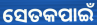
ସେତକପାଇଁ